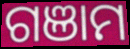
ଗଞାମ